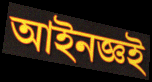
আইনজ্ঞই